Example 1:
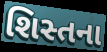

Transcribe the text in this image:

શિસ્તના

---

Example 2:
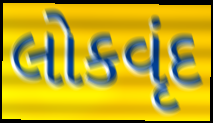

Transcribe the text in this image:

લોકવૃંદ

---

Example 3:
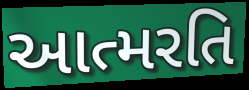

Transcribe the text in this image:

આત્મરતિ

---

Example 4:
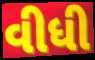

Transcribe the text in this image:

વીધી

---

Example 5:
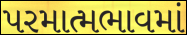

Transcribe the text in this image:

પરમાત્મભાવમાં